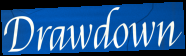
Drawdown